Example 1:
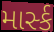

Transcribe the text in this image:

માર્સ્ક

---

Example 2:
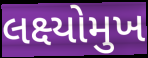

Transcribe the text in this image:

લક્ષ્યોમુખ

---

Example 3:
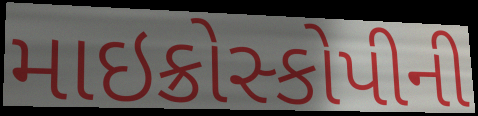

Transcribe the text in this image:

માઇક્રોસ્કોપીની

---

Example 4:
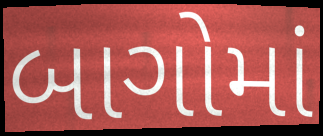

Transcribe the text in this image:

બાગોમાં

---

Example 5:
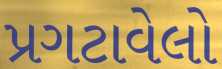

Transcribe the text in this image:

પ્રગટાવેલો